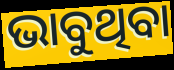
ଭାବୁଥିବା